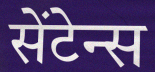
सेंटेन्स